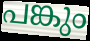
പങ്കും